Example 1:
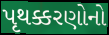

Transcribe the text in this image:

પૃથક્કરણોનો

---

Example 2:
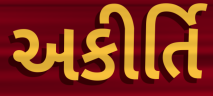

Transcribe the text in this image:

અકીર્તિ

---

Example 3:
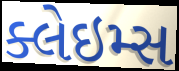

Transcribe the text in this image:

ક્લેઇમ્સ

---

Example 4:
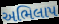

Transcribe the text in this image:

અભિલાપ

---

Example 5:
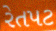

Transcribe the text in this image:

રેતપટ